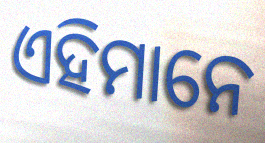
ଏହିମାନେ